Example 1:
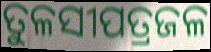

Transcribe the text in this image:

ତୁଳସୀପତ୍ରଜଳ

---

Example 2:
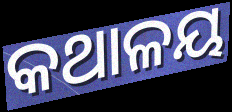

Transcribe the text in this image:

କଥାଳୟ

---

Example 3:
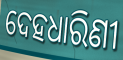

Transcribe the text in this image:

ଦେହଧାରିଣୀ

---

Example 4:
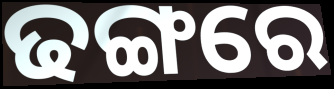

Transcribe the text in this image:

ଢଙ୍ଗରେ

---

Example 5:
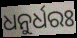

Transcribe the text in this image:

ଧନୁର୍ଧରଃ